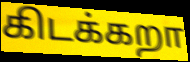
கிடக்கறா